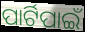
ପାର୍ଟିପାଇଁ